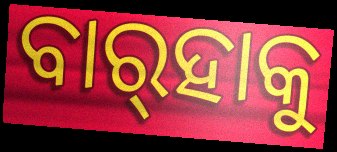
ବାର୍‍ହାକୁ